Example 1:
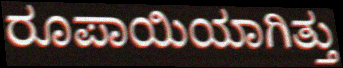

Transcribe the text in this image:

ರೂಪಾಯಿಯಾಗಿತ್ತು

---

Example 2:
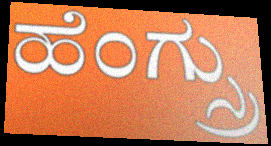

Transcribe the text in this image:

ಹೆಂಗ್ಸ್ರು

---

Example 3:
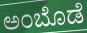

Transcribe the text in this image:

ಅಂಬೊಡೆ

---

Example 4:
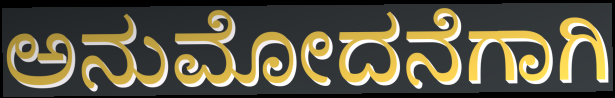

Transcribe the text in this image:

ಅನುಮೋದನೆಗಾಗಿ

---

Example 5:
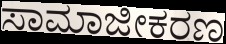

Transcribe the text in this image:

ಸಾಮಾಜೀಕರಣ